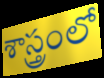
శాస్త్రంలో